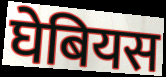
घेबियस